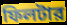
ফিলটার